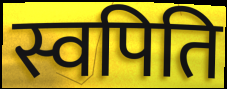
स्वपिति